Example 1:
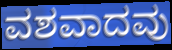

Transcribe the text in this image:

ವಶವಾದವು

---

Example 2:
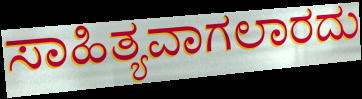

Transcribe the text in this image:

ಸಾಹಿತ್ಯವಾಗಲಾರದು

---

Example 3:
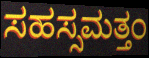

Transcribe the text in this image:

ಸಹಸ್ಸಮತ್ತಂ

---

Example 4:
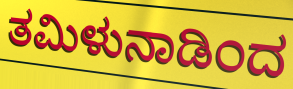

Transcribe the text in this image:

ತಮಿಳುನಾಡಿಂದ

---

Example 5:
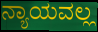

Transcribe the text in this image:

ನ್ಯಾಯವಲ್ಲ